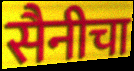
सैनीचा